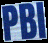
PBI